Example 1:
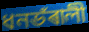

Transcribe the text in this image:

ধনভঁৰালী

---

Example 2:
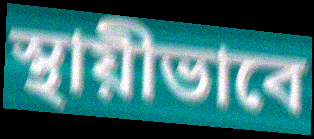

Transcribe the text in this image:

স্থায়ীভাবে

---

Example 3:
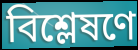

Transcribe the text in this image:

বিশ্লেষণে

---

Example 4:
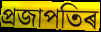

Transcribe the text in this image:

প্ৰজাপতিৰ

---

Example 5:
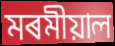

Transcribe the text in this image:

মৰমীয়াল